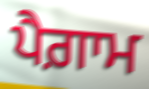
ਪੈਗ਼ਾਮ